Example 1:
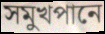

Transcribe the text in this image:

সমুখপানে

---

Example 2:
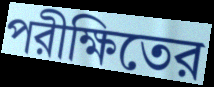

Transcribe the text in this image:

পরীক্ষিতের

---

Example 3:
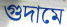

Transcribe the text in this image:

গুদামে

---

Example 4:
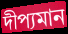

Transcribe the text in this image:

দীপ্যমান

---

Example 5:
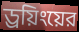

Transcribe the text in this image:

ড্রয়িংয়ের